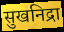
सुखनिद्रा